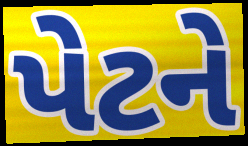
પેટને